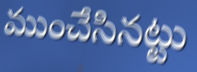
ముంచేసినట్టు